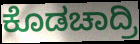
ಕೊಡಚಾದ್ರಿ